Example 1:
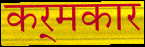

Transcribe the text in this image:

कर्मकार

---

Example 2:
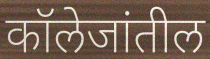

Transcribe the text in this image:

कॉलेजांतील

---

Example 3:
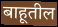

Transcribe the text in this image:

बाहूतील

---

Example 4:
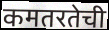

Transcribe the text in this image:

कमतरतेची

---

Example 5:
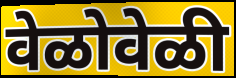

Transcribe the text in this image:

वेळोवेळी